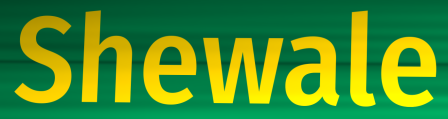
Shewale